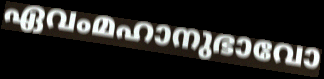
ഏവംമഹാനുഭാവോ